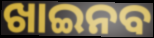
ଖାଇନବ